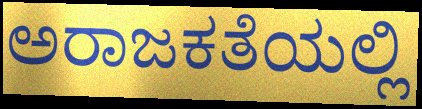
ಅರಾಜಕತೆಯಲ್ಲಿ